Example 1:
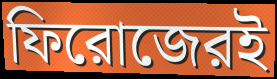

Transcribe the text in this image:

ফিরোজেরই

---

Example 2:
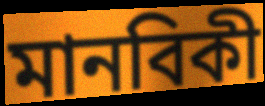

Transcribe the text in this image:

মানবিকী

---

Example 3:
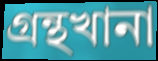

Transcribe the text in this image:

গ্রন্থখানা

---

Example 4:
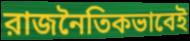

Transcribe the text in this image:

রাজনৈতিকভাবেই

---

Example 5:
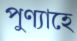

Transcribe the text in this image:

পুণ্যাহে